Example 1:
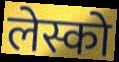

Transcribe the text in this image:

लेस्को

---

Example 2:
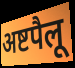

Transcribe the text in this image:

अष्टपैलू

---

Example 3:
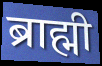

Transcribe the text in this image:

ब्राह्मी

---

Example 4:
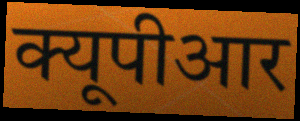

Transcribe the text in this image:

क्यूपीआर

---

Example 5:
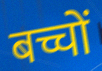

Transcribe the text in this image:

बच्चों